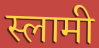
स्लामी